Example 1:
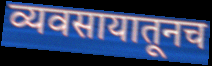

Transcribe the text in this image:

व्यवसायातूनच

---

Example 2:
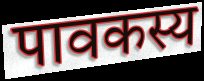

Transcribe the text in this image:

पावकस्य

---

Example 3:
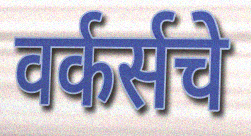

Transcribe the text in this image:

वर्कर्सचे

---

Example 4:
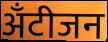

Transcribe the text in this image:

अँटीजन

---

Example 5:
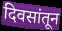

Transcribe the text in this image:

दिवसांतून